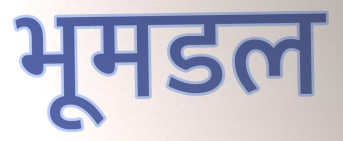
भूमडल